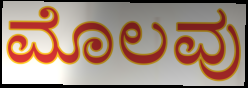
ಮೊಲವು